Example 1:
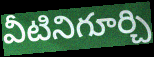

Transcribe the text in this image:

వీటినిగూర్చి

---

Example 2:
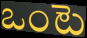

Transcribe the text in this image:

ఒంటె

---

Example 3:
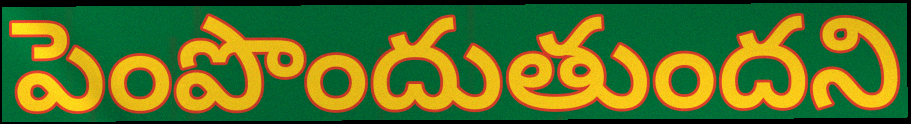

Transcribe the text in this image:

పెంపొందుతుందని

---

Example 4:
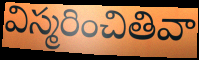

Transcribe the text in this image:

విస్మరించితివా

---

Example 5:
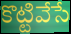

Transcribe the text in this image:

కొట్టివేసే